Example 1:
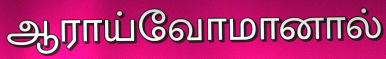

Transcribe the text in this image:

ஆராய்வோமானால்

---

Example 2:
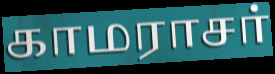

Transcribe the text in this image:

காமராசர்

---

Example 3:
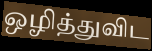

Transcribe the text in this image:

ஒழித்துவிட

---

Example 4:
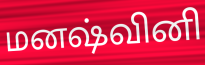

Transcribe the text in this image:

மனஷ்வினி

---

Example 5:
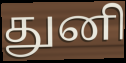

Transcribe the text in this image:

துனி